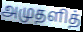
அமுதளித்